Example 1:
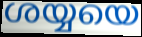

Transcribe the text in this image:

ശയ്യയെ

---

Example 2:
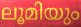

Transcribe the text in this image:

ലൂമിയും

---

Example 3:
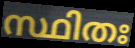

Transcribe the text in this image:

സ്ഥിതഃ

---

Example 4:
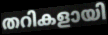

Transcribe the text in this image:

തറികളായി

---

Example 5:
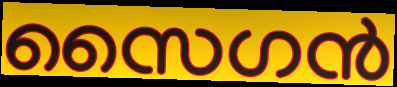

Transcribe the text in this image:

സൈഗൻ